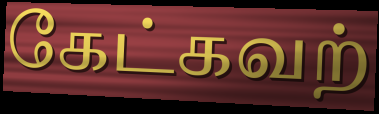
கேட்கவற்